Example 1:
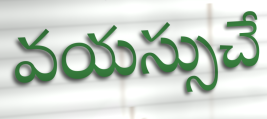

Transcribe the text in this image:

వయస్సుచే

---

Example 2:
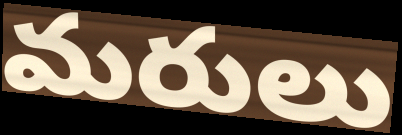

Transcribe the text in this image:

మరులు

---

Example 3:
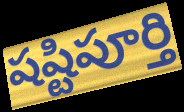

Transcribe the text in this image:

షష్టిపూర్తి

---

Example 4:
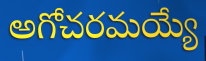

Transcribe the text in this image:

అగోచరమయ్యే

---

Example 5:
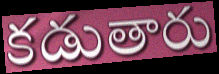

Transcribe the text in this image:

కడుతారు